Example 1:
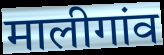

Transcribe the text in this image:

मालीगांव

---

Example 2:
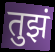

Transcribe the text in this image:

तुझं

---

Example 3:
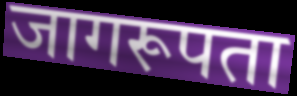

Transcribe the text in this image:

जागरूपता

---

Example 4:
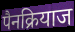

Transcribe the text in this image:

पैनक्रियाज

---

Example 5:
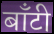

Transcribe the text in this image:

बाँटी